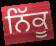
ਨਿੱਕੂ